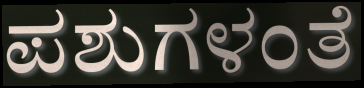
ಪಶುಗಳಂತೆ